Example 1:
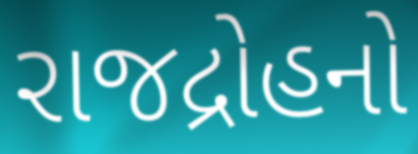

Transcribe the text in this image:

રાજદ્રોહનો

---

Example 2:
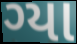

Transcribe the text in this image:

ગ્યા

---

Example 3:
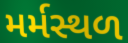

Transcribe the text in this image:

મર્મસ્થળ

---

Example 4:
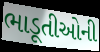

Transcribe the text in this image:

ભાડૂતીઓની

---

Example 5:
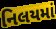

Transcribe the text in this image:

નિલયમાં